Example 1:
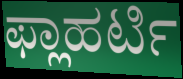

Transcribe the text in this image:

ಫ್ಲಾಹರ್ಟಿ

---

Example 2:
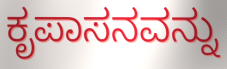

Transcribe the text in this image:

ಕೃಪಾಸನವನ್ನು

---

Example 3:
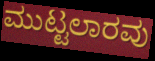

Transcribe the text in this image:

ಮುಟ್ಟಲಾರವು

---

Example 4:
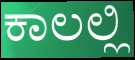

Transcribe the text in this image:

ಕಾಲಲ್ಲಿ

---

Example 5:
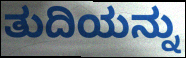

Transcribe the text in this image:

ತುದಿಯನ್ನು